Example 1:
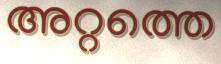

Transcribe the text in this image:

അറ്റത്തെ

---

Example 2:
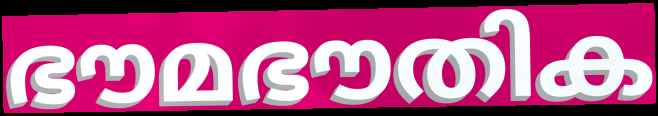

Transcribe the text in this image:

ഭൗമഭൗതിക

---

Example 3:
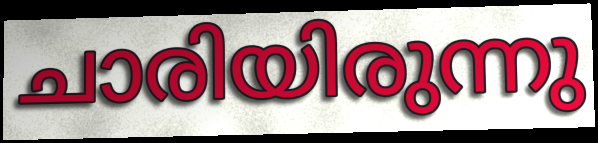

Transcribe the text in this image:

ചാരിയിരുന്നു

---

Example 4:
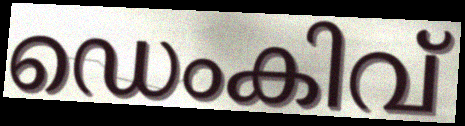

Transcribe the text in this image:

ഡെംകിവ്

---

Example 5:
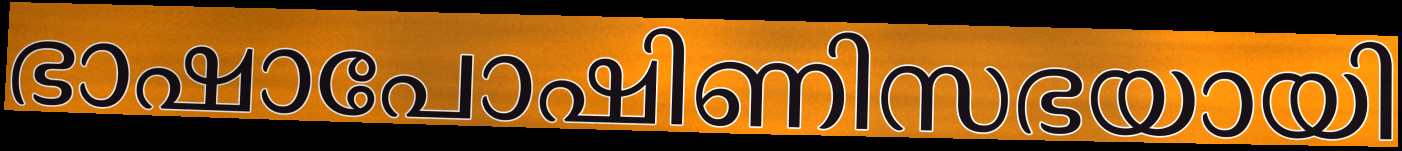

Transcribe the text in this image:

ഭാഷാപോഷിണിസഭയായി